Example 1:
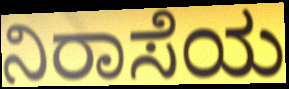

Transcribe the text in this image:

ನಿರಾಸೆಯ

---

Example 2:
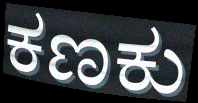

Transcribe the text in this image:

ಕಣಕು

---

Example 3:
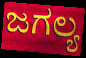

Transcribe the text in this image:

ಜಗಲ್ಯ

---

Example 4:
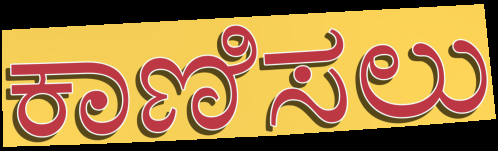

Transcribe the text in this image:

ಕಾಣಿಸಲು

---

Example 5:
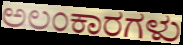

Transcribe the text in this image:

ಅಲಂಕಾರಗಳು